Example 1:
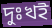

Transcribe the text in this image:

দুঃখই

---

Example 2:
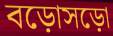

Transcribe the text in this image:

বড়োসড়ো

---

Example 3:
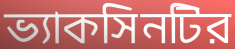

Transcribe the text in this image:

ভ্যাকসিনটির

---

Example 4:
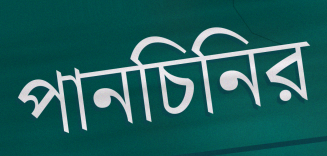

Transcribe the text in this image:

পানচিনির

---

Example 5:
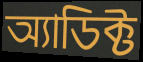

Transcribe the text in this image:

অ্যাডিক্ট